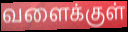
வளைக்குள்